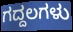
ಗದ್ದಲಗಳು